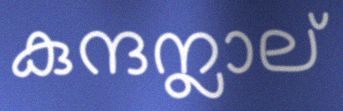
കുന്ദന്ലാല്